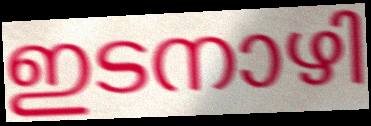
ഇടനാഴി